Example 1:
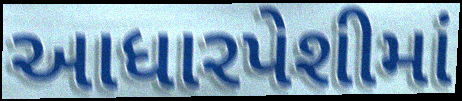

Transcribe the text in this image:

આધારપેશીમાં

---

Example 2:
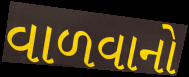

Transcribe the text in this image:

વાળવાનો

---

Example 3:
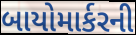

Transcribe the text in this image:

બાયોમાર્કરની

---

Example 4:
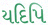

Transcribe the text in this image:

યદિપિ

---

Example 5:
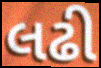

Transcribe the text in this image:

લઢી